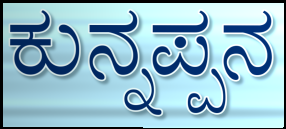
ಕುನ್ನಪ್ಪನ